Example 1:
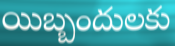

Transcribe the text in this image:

యిబ్బందులకు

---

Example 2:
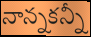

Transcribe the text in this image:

నాన్నకన్నీ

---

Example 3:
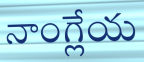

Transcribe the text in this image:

నాంగ్లేయ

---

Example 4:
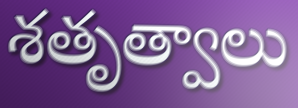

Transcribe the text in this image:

శతృత్వాలు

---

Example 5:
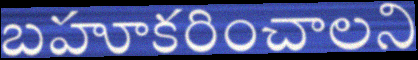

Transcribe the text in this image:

బహూకరించాలని